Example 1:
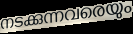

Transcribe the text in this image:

നടക്കുന്നവരെയും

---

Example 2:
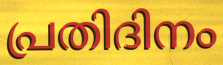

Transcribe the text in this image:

പ്രതിദിനം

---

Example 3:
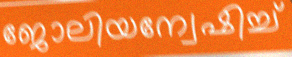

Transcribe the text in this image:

ജോലിയന്വേഷിച്ച്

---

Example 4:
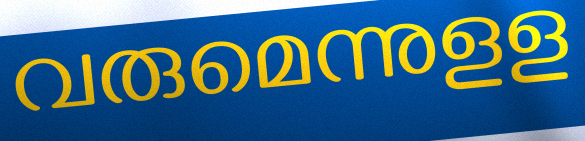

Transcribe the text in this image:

വരുമെന്നുളള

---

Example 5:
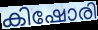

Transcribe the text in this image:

കിഷോരി